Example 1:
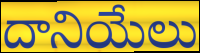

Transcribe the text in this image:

దానియేలు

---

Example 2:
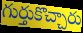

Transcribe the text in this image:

గుర్తుకొచ్చారు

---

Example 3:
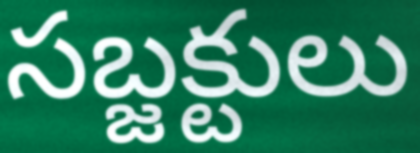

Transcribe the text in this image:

సబ్జక్టులు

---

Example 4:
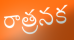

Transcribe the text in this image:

రాత్రనక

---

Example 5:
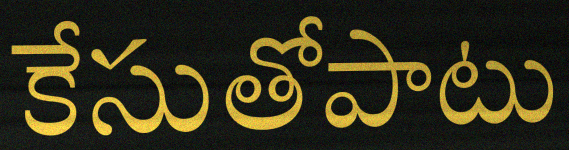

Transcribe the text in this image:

కేసుతోపాటు